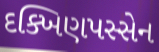
દક્ખિણપસ્સેન